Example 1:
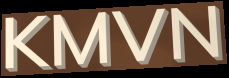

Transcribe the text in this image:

KMVN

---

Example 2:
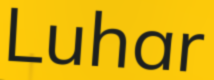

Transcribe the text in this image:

Luhar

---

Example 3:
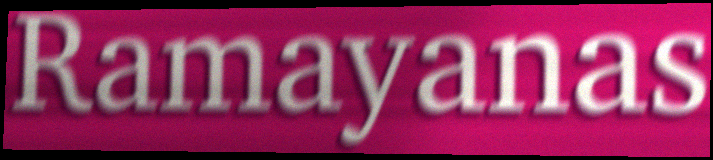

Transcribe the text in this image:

Ramayanas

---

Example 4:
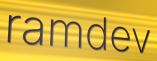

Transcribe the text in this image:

ramdev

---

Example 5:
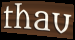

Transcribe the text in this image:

thau